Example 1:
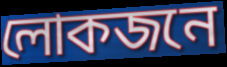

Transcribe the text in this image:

লোকজনে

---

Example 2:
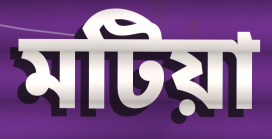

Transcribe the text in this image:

মটিয়া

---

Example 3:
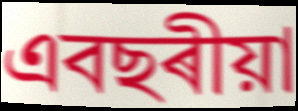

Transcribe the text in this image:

এবছৰীয়া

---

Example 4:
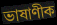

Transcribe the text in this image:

ভাষাণীক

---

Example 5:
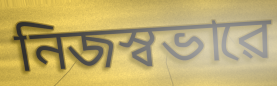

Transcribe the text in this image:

নিজস্বভাৱে